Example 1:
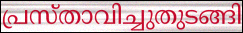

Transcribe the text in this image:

പ്രസ്താവിച്ചുതുടങ്ങി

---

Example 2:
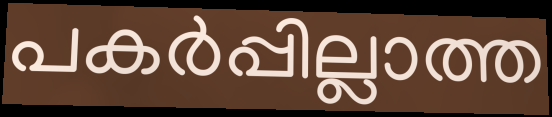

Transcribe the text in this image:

പകർപ്പില്ലാത്ത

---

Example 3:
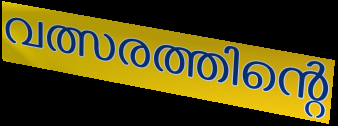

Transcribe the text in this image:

വത്സരത്തിന്റെ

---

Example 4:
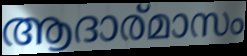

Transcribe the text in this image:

ആദാര്മാസം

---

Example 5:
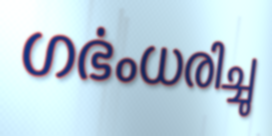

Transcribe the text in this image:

ഗൎഭംധരിച്ചു